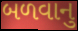
બળવાનુ